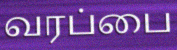
வரப்பை